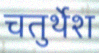
चतुर्थेश